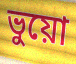
ভুয়ো